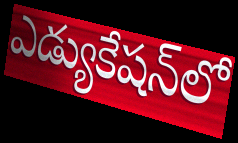
ఎడ్యుకేషన్‌లో